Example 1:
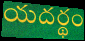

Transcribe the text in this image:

యదర్థం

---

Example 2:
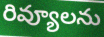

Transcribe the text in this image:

రివ్యూలను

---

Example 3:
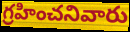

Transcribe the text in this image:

గ్రహించనివారు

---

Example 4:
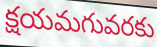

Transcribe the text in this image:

క్షయమగువరకు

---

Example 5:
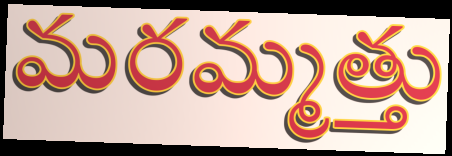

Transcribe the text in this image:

మరమ్మత్తు